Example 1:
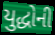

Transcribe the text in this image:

યુદ્ધોની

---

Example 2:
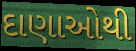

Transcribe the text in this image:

દાણાઓથી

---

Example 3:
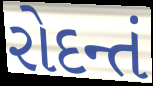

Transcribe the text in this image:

રોદન્તં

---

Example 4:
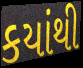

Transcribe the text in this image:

કયાંથી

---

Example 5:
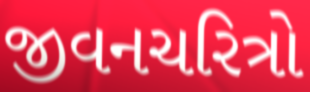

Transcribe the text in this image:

જીવનચરિત્રો